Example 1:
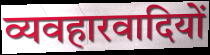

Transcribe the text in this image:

व्यवहारवादियों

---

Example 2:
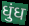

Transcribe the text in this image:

धुंध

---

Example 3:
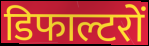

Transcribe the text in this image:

डिफाल्टरों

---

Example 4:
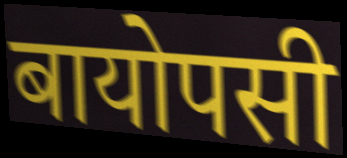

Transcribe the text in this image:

बायोपसी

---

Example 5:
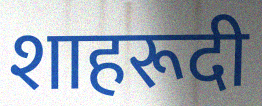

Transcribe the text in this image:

शाहरूदी